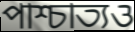
পাশ্চাত্যও